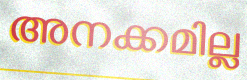
അനക്കമില്ല